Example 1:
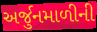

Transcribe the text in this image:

અર્જુનમાળીની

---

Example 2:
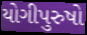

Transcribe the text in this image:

યોગીપુરુષો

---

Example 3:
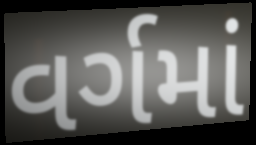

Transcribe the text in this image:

વર્ગમાં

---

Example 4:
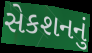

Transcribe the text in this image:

સેકશનનું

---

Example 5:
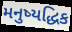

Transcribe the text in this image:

મનુષ્યદ્ધિક